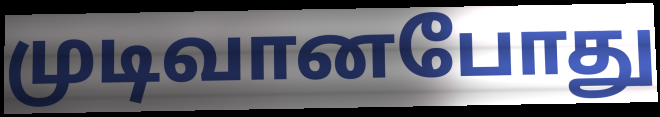
முடிவானபோது